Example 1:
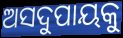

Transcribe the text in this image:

ଅସଦୁପାୟକୁ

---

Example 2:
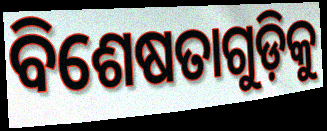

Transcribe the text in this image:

ବିଶେଷତାଗୁଡ଼ିକୁ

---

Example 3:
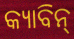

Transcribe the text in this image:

କ୍ୟାବିନ୍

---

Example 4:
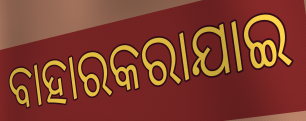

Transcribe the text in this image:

ବାହାରକରାଯାଇ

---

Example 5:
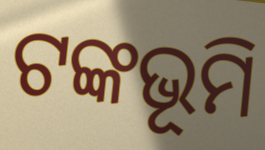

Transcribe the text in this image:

ଟଙ୍କଭୂମି